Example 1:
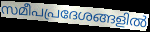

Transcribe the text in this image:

സമീപപ്രദേശങ്ങളിൽ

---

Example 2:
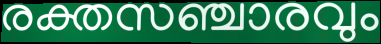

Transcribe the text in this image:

രക്തസഞ്ചാരവും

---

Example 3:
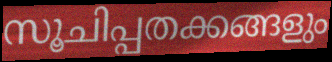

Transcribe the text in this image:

സൂചിപ്പതക്കങ്ങളും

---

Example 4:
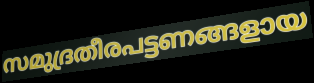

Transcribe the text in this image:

സമുദ്രതീരപട്ടണങ്ങളായ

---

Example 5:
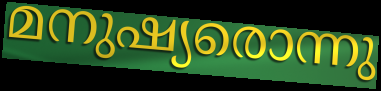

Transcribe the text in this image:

മനുഷ്യരൊന്നു